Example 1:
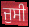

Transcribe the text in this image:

ਜੁਸੀ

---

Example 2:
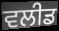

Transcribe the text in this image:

ਵਲੀਡ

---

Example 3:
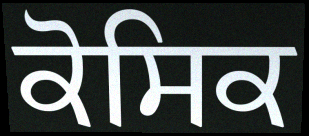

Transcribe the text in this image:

ਕੋਸਿਕ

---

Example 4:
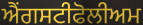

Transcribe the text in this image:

ਐਂਗਸਟੀਫੋਲੀਅਮ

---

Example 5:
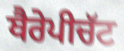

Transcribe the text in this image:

ਥੈਰੇਪੀਚੱਟ